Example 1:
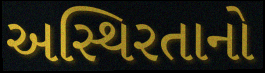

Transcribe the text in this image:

અસ્થિરતાનો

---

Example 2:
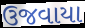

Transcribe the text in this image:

ઉજવાયા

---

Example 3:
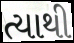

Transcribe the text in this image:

ત્યાથી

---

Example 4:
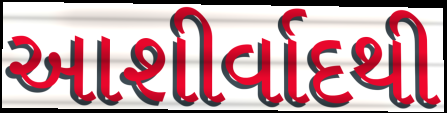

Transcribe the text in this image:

આશીર્વાદથી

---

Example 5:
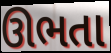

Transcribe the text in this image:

ઊભતા